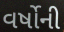
વર્ષોની